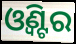
ଓ୍ଵିଣ୍ଟର